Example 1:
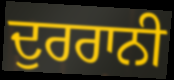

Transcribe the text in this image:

ਦੁਰਰਾਨੀ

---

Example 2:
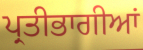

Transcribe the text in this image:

ਪ੍ਰਤੀਭਾਗੀਆਂ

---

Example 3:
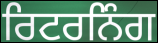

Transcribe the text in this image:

ਰਿਟਰਨਿੰਗ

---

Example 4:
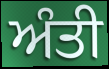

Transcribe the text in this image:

ਅੰਤੀ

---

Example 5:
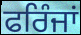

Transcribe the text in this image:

ਫਰਿੰਜਾਂ